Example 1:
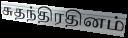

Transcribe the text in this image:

சுதந்திரதினம்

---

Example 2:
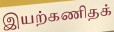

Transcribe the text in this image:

இயற்கணிதக்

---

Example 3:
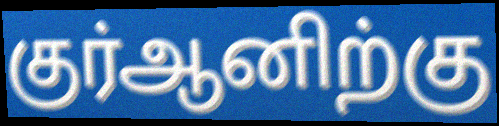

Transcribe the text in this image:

குர்ஆனிற்கு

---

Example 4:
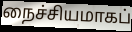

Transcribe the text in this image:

நைச்சியமாகப்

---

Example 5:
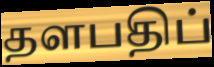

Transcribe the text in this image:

தளபதிப்